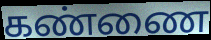
கண்ணை